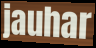
jauhar